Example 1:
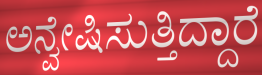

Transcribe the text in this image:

ಅನ್ವೇಷಿಸುತ್ತಿದ್ದಾರೆ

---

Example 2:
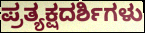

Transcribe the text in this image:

ಪ್ರತ್ಯಕ್ಷದರ್ಶಿಗಳು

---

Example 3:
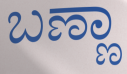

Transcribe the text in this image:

ಬಣ್ಣಾ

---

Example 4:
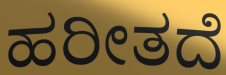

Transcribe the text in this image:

ಹರೀತದೆ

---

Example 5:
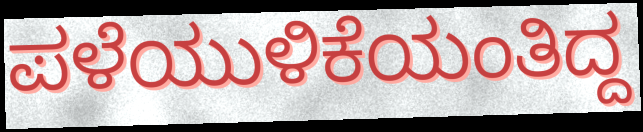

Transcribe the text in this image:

ಪಳೆಯುಳಿಕೆಯಂತಿದ್ದ